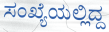
ಸಂಖ್ಯೆಯಲ್ಲಿದ್ದ